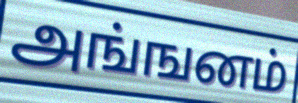
அங்ஙனம்